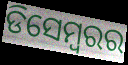
ଡିସେମ୍ୱରର